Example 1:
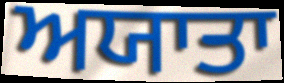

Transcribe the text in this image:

ਅਯਾਤਾ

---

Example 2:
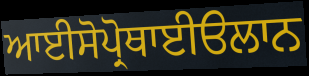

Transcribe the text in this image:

ਆਈਸੋਪ੍ਰੋਥਾਈੳਲਾਨ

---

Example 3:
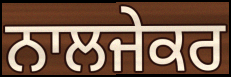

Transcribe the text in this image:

ਨਾਲਜੇਕਰ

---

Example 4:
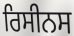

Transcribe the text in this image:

ਰਿਸੀਨਸ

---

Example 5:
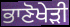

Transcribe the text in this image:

ਭਾਣੋਖੇੜੀ